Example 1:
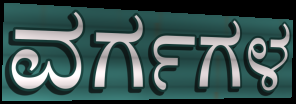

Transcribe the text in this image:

ವರ್ಗಗಳ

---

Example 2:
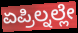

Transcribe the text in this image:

ಏಪ್ರಿಲ್ನಲ್ಲೇ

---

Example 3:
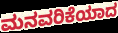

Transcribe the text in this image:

ಮನವರಿಕೆಯಾದ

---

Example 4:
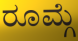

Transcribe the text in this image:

ರೂಮ್ಗೆ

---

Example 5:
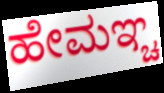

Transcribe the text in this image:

ಹೇಮಞ್ಚ